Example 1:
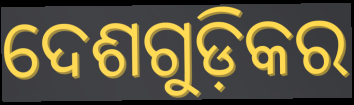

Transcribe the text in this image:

ଦେଶଗୁଡ଼ିକର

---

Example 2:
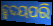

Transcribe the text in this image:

ହୃଦୟପରି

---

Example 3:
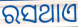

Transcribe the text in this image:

ରସଥାଏ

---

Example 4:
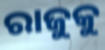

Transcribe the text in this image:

ରାଜୁକୁ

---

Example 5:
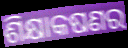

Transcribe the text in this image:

ଶିକ୍ଷାକଷଣର